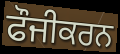
ਫੌਜੀਕਰਨ